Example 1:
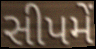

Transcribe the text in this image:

સીપમેં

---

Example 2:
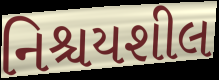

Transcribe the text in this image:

નિશ્ચયશીલ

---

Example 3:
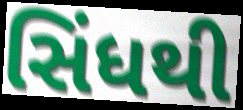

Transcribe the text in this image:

સિંધથી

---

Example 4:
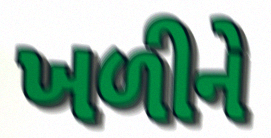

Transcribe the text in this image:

ખળીને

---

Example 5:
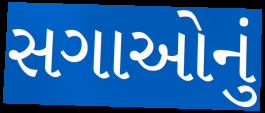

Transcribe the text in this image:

સગાઓનું